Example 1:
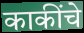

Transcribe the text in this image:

काकींचे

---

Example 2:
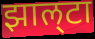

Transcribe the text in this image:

झाल्टा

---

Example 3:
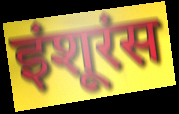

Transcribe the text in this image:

इंशूरंस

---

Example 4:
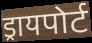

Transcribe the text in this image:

ड्रायपोर्ट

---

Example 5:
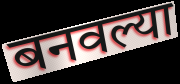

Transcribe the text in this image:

बनवल्या